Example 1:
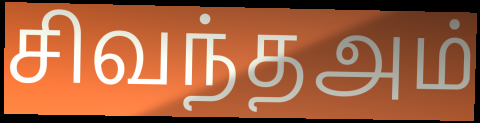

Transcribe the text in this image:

சிவந்தஅம்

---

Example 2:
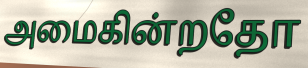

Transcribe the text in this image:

அமைகின்றதோ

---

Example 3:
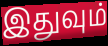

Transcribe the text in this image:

இதுவும்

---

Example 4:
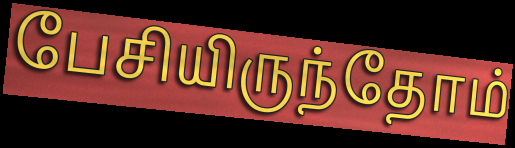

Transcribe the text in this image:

பேசியிருந்தோம்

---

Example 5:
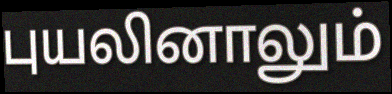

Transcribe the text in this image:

புயலினாலும்